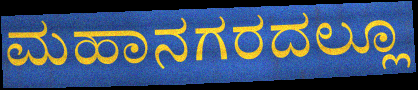
ಮಹಾನಗರದಲ್ಲೂ